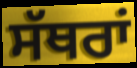
ਸੱਥਰਾਂ